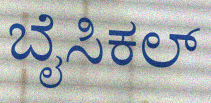
ಬೈಸಿಕಲ್